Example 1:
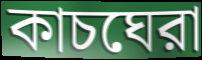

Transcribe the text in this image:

কাচঘেরা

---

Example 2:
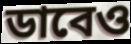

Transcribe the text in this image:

ডাবেও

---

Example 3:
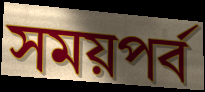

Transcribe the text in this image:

সময়পর্ব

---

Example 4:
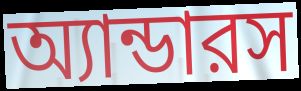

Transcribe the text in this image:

অ্যান্ডারস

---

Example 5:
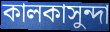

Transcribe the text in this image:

কালকাসুন্দা